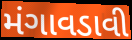
મંગાવડાવી